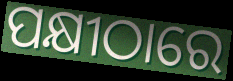
ପକ୍ଷୀଠାରେ